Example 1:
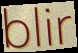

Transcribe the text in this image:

blir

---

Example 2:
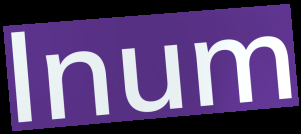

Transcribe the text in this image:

Inum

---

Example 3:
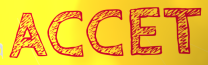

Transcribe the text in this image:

ACCET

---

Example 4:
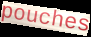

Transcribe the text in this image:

pouches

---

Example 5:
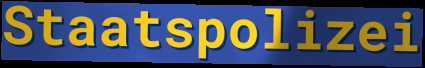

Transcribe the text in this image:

Staatspolizei